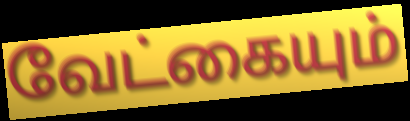
வேட்கையும்